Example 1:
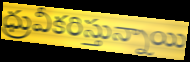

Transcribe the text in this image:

ధ్రువీకరిస్తున్నాయి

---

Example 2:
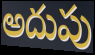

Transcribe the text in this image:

అదుపు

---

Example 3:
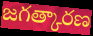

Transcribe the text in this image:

జగత్కారణ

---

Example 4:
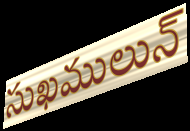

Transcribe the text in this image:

సుఖములున్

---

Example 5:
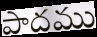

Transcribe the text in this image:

పాదము